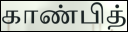
காண்பித்